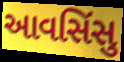
આવસિંસુ